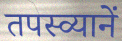
तपस्व्यानें